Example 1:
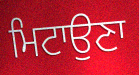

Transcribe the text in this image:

ਮਿਟਾਉਣਾ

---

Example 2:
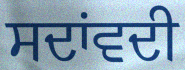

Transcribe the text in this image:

ਸਦਾਂਵਦੀ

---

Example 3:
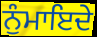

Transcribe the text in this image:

ਨੁੰਮਾਇਦੇ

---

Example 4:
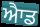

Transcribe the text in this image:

ਐਾਡ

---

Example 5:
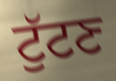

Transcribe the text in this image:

ਟੁੱਟਣ